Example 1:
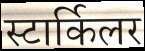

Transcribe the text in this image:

स्टार्किलर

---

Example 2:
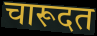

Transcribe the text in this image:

चारूदत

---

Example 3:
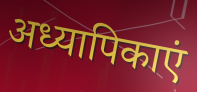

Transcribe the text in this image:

अध्यापिकाएं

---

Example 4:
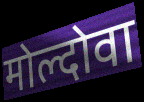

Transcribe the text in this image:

मोल्दोवा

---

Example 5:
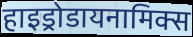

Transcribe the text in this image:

हाइड्रोडायनामिक्स